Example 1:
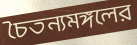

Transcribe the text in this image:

চৈতন্যমঙ্গলের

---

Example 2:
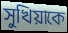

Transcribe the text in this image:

সুখিয়াকে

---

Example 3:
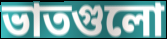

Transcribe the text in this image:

ভাতগুলো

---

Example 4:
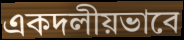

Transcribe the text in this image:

একদলীয়ভাবে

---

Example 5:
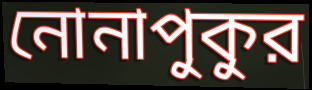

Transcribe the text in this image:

নোনাপুকুর